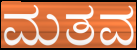
ಮತವ